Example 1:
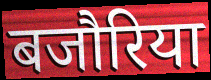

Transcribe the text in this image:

बजौरिया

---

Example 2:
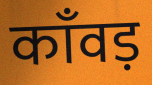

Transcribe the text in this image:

काँवड़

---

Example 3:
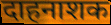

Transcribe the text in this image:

दाहनाशक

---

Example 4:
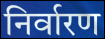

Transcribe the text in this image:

निर्वारण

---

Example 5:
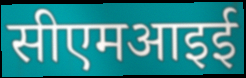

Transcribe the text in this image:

सीएमआइई